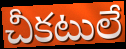
చీకటులే